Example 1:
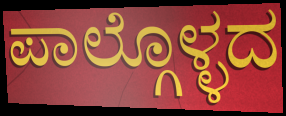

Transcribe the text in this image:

ಪಾಲ್ಗೊಳ್ಳದ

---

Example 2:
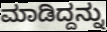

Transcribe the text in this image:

ಮಾಡಿದ್ದನ್ನು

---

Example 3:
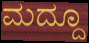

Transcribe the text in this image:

ಮದ್ದೂ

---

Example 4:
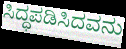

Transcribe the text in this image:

ಸಿದ್ಧಪಡಿಸಿದವನು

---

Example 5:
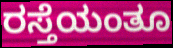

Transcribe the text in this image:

ರಸ್ತೆಯಂತೂ